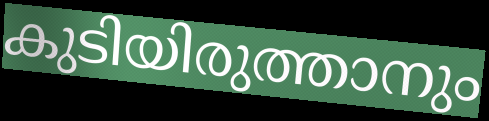
കുടിയിരുത്താനും